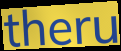
theru